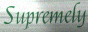
Supremely